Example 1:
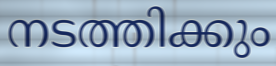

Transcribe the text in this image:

നടത്തിക്കും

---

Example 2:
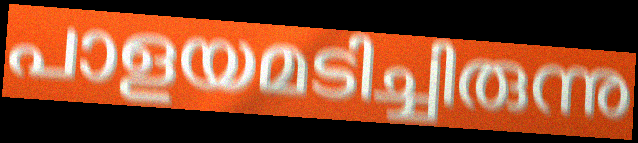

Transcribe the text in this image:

പാളയമടിച്ചിരുന്നു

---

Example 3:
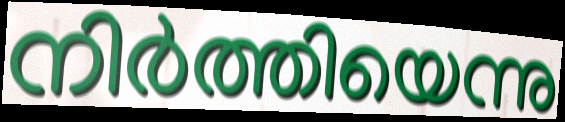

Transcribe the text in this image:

നിർത്തിയെന്നു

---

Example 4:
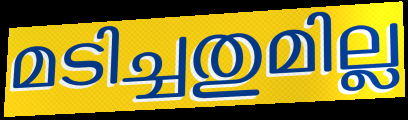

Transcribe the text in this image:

മടിച്ചതുമില്ല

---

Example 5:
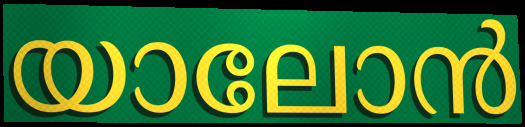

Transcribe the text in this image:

യാലോൻ